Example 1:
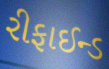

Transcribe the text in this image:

રીફાઈન્ડ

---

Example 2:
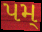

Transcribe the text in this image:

પમ્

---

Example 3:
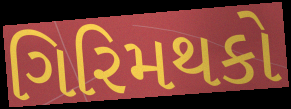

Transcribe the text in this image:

ગિરિમથકો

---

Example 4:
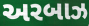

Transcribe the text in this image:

અરબાઝ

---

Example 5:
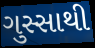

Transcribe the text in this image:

ગુસ્સાથી